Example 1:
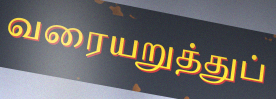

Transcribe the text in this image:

வரையறுத்துப்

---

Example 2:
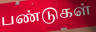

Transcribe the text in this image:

பண்டுகள்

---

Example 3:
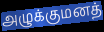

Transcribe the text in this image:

அழுக்குமனத்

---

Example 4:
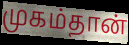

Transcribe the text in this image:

முகம்தான்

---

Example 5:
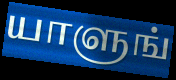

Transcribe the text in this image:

யாளுங்